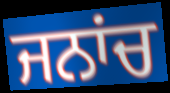
ਜਨਾਂਚ